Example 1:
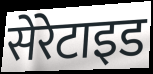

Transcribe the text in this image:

सेरेटाइड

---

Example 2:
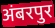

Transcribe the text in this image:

अंबरपुर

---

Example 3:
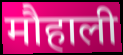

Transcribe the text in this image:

मौहाली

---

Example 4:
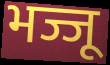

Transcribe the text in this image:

भज्जू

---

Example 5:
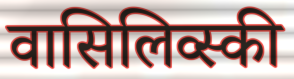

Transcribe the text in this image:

वासिलिव्स्की